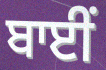
ਬਾਈਂ